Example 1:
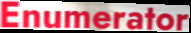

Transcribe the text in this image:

Enumerator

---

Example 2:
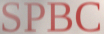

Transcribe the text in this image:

SPBC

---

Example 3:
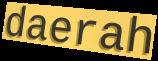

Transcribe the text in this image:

daerah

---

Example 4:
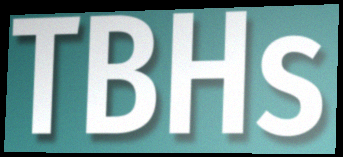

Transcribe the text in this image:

TBHs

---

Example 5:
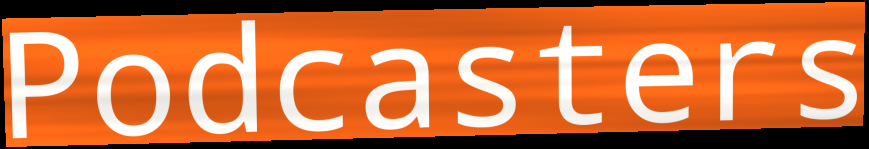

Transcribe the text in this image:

Podcasters